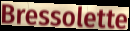
Bressolette